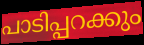
പാടിപ്പറക്കും